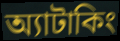
অ্যাটাকিং